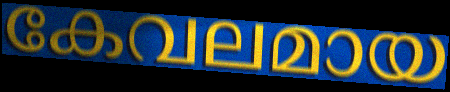
കേവലമായ